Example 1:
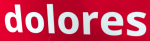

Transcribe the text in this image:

dolores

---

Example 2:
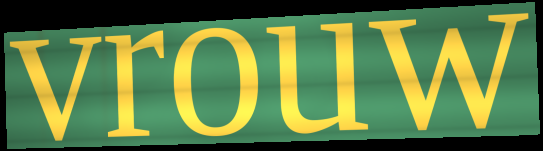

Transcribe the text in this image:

vrouw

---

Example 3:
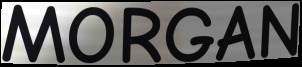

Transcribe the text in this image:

MORGAN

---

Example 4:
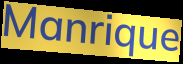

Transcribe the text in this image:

Manrique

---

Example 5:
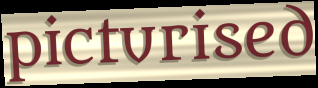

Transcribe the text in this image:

picturised